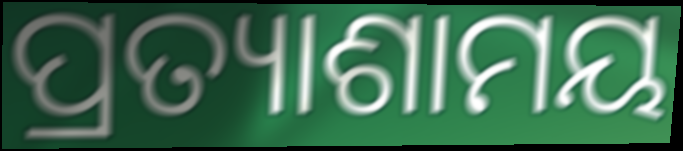
ପ୍ରତ୍ୟାଶାମୟ